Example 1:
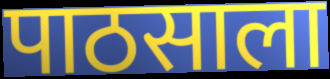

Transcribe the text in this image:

पाठसाला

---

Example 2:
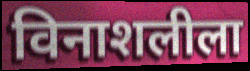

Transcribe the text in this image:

विनाशलीला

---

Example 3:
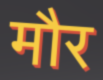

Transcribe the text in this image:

मौर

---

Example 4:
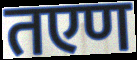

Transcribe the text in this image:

तएण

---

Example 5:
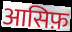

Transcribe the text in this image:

आसिफ़